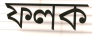
ফলক